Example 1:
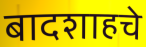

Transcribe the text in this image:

बादशाहचे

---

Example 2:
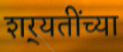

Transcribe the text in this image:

शर्यतींच्या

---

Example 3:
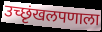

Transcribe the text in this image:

उच्छृंखलपणाला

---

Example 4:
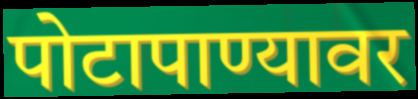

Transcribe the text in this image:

पोटापाण्यावर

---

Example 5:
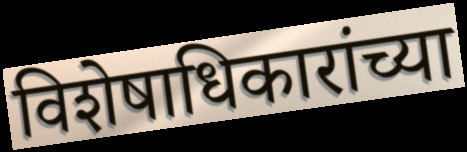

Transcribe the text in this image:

विशेषाधिकारांच्या